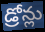
డ్రోన్లు